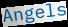
Angels